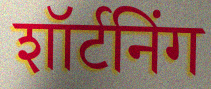
शॉर्टनिंग